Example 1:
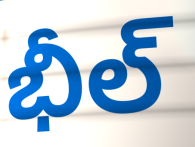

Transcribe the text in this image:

భీల్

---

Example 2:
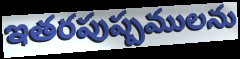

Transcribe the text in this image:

ఇతరపుష్పములను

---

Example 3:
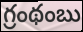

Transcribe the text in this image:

గ్రంథంబు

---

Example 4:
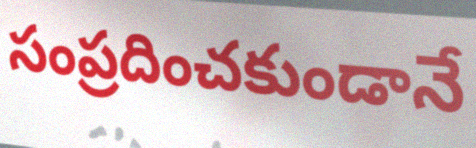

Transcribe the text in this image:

సంప్రదించకుండానే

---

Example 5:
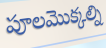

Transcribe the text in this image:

పూలమొక్కల్ని